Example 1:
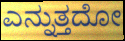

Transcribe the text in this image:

ಎನ್ನುತ್ತದೋ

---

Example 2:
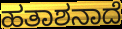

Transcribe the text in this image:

ಹತಾಶನಾದೆ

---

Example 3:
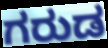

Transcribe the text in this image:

ಗರುಡ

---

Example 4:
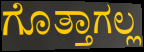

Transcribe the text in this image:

ಗೊತ್ತಾಗಲ್ಲ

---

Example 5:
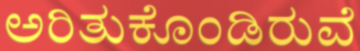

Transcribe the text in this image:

ಅರಿತುಕೊಂಡಿರುವೆ